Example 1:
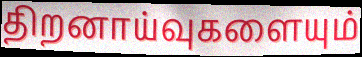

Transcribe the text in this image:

திறனாய்வுகளையும்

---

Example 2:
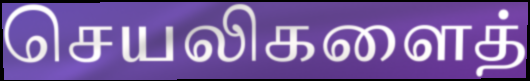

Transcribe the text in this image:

செயலிகளைத்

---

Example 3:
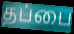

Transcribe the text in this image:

தப்பை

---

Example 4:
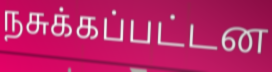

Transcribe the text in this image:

நசுக்கப்பட்டன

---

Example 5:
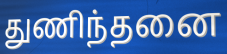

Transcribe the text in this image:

துணிந்தனை